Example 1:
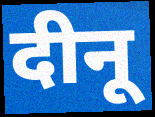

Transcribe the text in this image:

दीनू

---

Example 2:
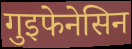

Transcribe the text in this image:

गुइफेनेसिन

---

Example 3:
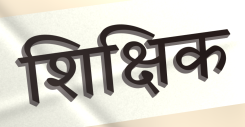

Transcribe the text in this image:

शिक्षिक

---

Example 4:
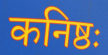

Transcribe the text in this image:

कनिष्ठः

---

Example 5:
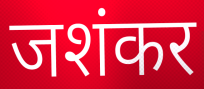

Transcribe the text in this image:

जशंकर